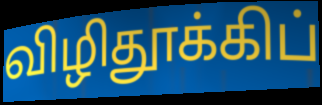
விழிதூக்கிப்